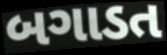
બગાડત